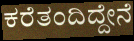
ಕರೆತಂದಿದ್ದೇನೆ